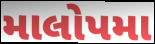
માલોપમા